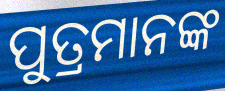
ପୁତ୍ରମାନଙ୍କ